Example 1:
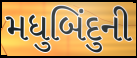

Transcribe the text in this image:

મધુબિંદુની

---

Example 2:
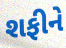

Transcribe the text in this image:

શફીને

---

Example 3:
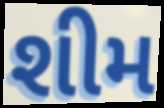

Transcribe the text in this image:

શીમ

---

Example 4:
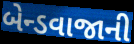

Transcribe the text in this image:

બેન્ડવાજાની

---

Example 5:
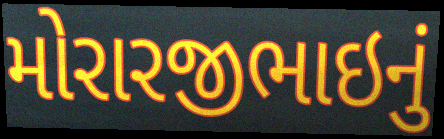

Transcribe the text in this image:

મોરારજીભાઇનું